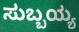
ಸುಬ್ಬಯ್ಯ